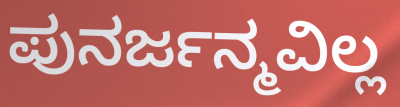
ಪುನರ್ಜನ್ಮವಿಲ್ಲ